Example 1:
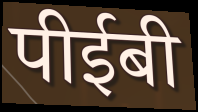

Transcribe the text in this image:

पीईबी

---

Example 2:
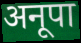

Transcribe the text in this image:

अनूपा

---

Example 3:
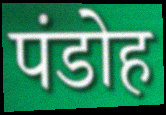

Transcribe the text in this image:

पंडोह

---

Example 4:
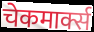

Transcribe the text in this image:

चेकमार्क्स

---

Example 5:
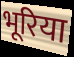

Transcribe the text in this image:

भूरिया